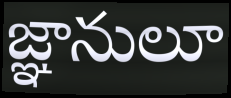
జ్ఞానులూ